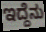
ಇದ್ದೆನು